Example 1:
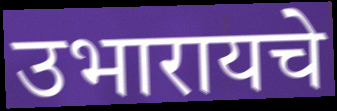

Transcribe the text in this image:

उभारायचे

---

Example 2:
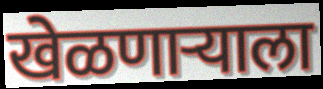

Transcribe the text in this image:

खेळणाऱ्याला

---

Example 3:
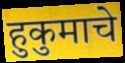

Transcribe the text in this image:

हुकुमाचे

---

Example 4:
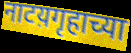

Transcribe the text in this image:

नाटय़गृहाच्या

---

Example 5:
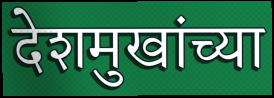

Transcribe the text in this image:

देशमुखांच्या